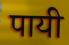
पायी